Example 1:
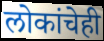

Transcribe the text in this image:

लोकांचेही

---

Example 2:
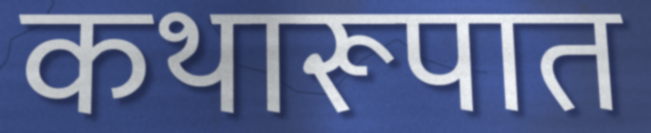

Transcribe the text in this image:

कथारूपात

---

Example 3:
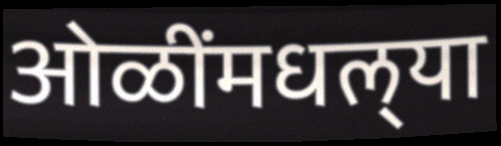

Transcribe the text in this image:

ओळींमधल्या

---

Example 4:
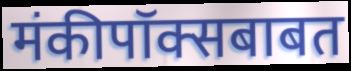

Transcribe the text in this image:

मंकीपॉक्सबाबत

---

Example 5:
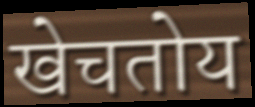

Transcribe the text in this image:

खेचतोय